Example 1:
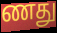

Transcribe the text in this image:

ணது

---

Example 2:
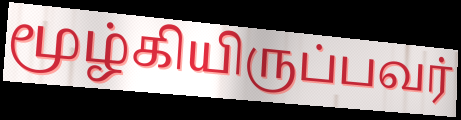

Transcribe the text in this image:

மூழ்கியிருப்பவர்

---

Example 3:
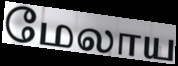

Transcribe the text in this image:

மேலாய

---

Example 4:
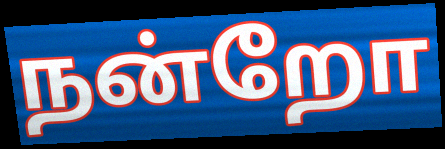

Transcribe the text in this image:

நன்றோ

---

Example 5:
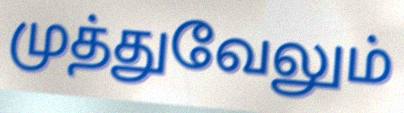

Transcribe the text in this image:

முத்துவேலும்